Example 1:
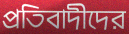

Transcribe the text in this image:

প্রতিবাদীদের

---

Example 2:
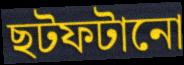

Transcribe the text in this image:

ছটফটানো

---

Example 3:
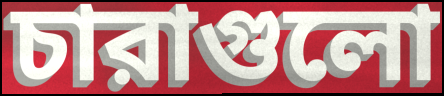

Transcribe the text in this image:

চারাগুলো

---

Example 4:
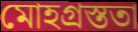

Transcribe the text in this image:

মোহগ্রস্ততা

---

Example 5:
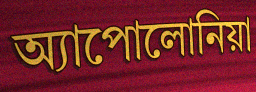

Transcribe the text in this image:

অ্যাপোলোনিয়া